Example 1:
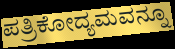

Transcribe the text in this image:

ಪತ್ರಿಕೋದ್ಯಮವನ್ನೂ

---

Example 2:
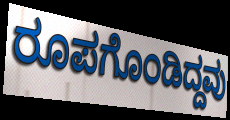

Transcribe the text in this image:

ರೂಪಗೊಂಡಿದ್ದವು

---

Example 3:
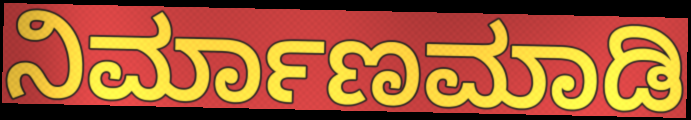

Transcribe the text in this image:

ನಿರ್ಮಾಣಮಾಡಿ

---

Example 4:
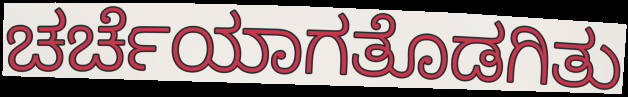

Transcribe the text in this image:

ಚರ್ಚೆಯಾಗತೊಡಗಿತು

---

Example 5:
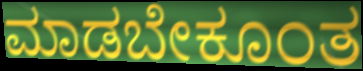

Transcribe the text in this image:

ಮಾಡಬೇಕೂಂತ